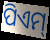
ପିଏମ୍